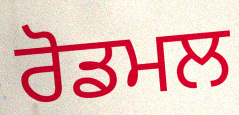
ਰੋਡਮਲ